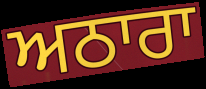
ਅਠਾਰਾ